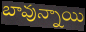
బావున్నాయి